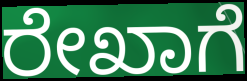
ರೇಖಾಗೆ